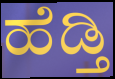
ಹೆಡ್ತಿ